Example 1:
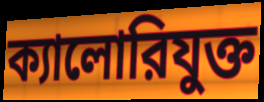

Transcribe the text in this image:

ক্যালোরিযুক্ত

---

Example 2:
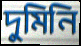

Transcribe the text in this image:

দুমিনি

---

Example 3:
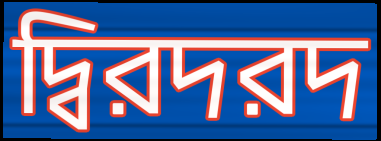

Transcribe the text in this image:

দ্বিরদরদ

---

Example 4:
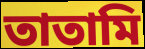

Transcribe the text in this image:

তাতামি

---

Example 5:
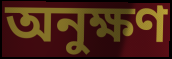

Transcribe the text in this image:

অনুক্ষণ